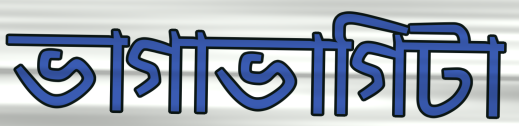
ভাগাভাগিটা